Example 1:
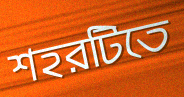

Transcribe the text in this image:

শহরটিতে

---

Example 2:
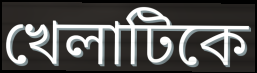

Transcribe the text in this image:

খেলাটিকে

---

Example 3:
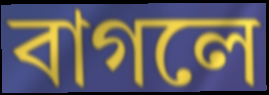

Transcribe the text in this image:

বাগলে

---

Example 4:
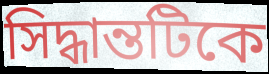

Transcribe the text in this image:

সিদ্ধান্তটিকে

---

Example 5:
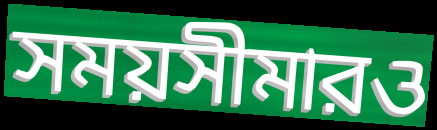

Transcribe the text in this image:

সময়সীমারও